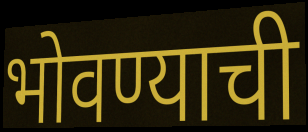
भोवण्याची